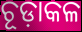
ଚୂଡ଼ାକଳ